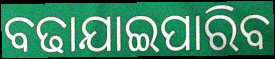
ବଢାଯାଇପାରିବ